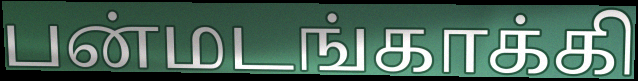
பன்மடங்காக்கி